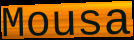
Mousa